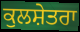
ਕੁਲਸ਼ੇਤਰਾ